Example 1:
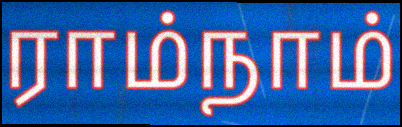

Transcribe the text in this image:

ராம்நாம்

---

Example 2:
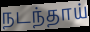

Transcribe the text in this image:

நடந்தாய்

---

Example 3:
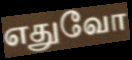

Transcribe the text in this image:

எதுவோ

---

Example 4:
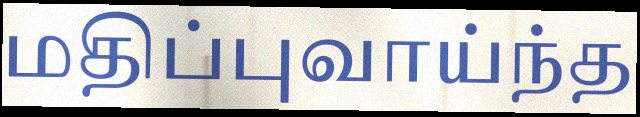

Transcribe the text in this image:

மதிப்புவாய்ந்த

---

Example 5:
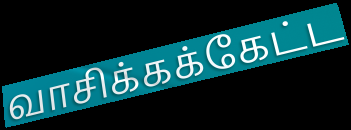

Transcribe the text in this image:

வாசிக்கக்கேட்ட